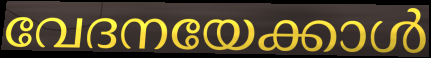
വേദനയേക്കാൾ